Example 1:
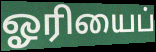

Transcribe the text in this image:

ஓரியைப்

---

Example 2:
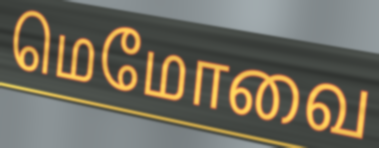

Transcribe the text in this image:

மெமோவை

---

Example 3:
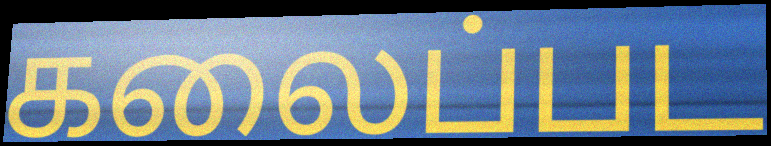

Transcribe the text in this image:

கலைப்பட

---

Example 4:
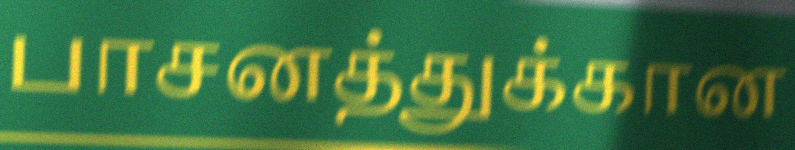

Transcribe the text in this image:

பாசனத்துக்கான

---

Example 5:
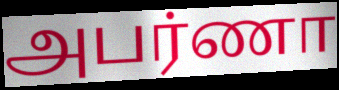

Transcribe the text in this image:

அபர்ணா